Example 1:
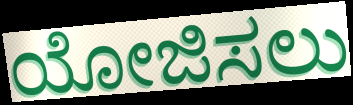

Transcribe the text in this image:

ಯೋಜಿಸಲು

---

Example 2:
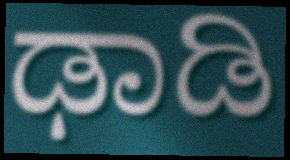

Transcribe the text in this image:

ಢಾಡಿ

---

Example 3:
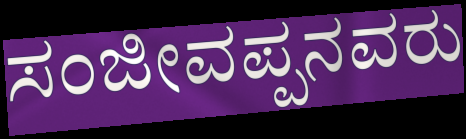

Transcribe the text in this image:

ಸಂಜೀವಪ್ಪನವರು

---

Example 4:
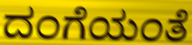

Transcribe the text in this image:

ದಂಗೆಯಂತೆ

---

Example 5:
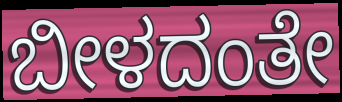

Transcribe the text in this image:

ಬೀಳದಂತೇ